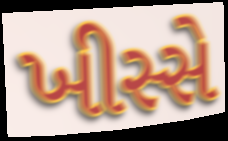
ખીસ્સે